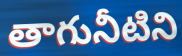
తాగునీటిని